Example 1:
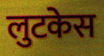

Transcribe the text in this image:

लुटकेस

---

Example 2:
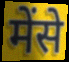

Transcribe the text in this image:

मेंसे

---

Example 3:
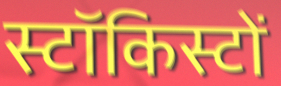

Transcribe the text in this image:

स्टॉकिस्टों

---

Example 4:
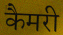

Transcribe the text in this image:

कैमरी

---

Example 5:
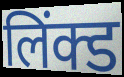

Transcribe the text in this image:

लिंक्ड